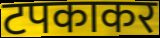
टपकाकर